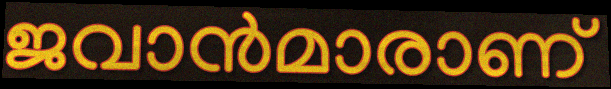
ജവാൻമാരാണ്